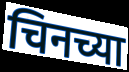
चिनच्या